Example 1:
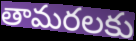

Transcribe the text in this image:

తామరలకు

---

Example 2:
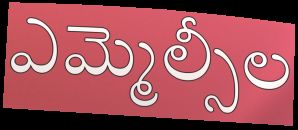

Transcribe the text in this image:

ఎమ్మెల్సీల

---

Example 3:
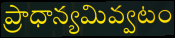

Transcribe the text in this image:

ప్రాధాన్యమివ్వటం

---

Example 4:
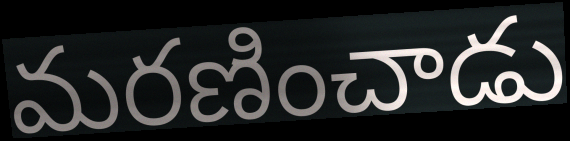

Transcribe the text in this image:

మరణించాడు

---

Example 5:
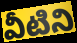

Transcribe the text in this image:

వీటిని